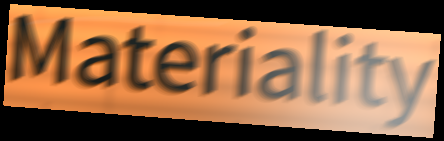
Materiality